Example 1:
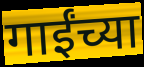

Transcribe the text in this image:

गाईंच्या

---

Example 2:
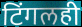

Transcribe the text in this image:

टिंगलही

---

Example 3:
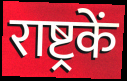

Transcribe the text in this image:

राष्ट्रकें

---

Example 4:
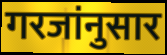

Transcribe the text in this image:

गरजांनुसार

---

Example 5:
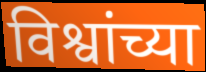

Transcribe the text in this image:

विश्वांच्या